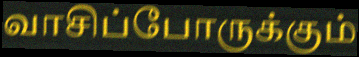
வாசிப்போருக்கும்